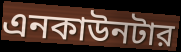
এনকাউনটার